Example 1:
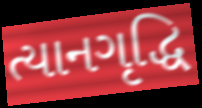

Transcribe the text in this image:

ત્યાનગૃદ્ધિ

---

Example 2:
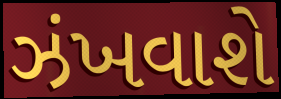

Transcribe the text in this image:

ઝંખવાશે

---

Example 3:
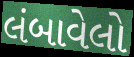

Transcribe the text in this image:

લંબાવેલો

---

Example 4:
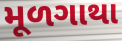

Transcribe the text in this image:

મૂળગાથા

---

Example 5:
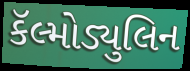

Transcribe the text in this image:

કૅલ્મોડ્યુલિન